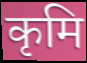
कृमि